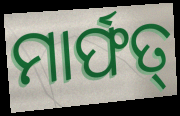
ମାର୍ଫତ୍